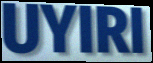
UYIRI